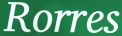
Rorres